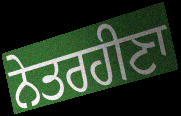
ਨੇਤਰਹੀਣਾ